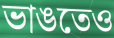
ভাঙতেও